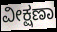
ವೀಕ್ಷಣಾ